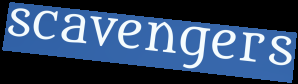
scavengers